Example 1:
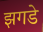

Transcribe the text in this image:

झगडे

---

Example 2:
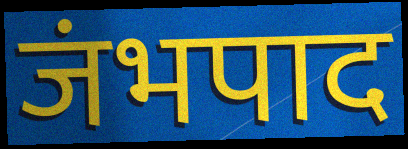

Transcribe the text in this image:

जंभपाद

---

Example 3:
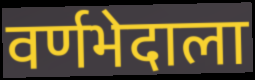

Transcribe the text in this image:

वर्णभेदाला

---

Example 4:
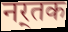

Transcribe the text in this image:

नर्तक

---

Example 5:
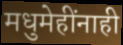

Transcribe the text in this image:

मधुमेहींनाही